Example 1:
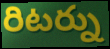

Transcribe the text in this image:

రిటర్ను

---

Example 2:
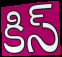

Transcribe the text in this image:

కిస్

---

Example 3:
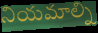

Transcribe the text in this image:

నియమాల్ని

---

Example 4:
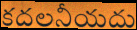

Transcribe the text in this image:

కదలనీయదు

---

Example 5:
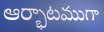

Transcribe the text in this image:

ఆర్భాటముగా